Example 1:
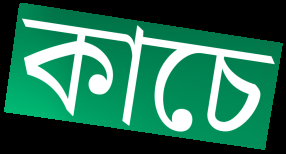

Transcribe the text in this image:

কাচে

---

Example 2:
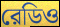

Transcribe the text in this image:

রেডিও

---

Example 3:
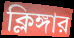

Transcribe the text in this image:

ক্লিঙ্গার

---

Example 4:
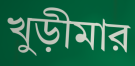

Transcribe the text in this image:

খুড়ীমার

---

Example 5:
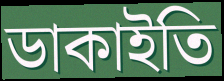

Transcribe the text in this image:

ডাকাইতি